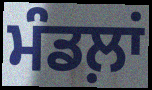
ਮੰਡਲ਼ਾਂ